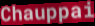
Chauppai